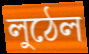
লুঠেল